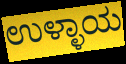
ಉಳ್ಳಾಯ